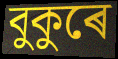
বুকুৰে